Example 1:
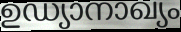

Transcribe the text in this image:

ഉഡ്യാനാഖ്യം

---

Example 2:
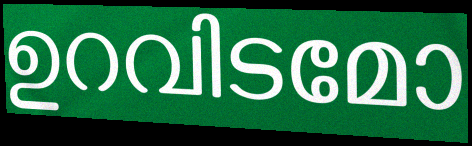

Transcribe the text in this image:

ഉറവിടമോ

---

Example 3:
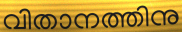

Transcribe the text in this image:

വിതാനത്തിനു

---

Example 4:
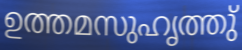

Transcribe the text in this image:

ഉത്തമസുഹൃത്തു്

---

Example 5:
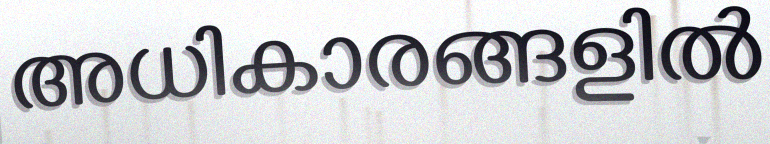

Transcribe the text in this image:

അധികാരങ്ങളിൽ